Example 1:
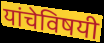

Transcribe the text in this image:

यांचेविषयी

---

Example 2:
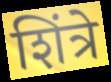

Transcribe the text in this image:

शिंत्रे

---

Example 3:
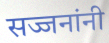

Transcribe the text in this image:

सज्जनांनी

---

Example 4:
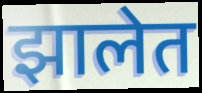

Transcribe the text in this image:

झालेत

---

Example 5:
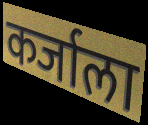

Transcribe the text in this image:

कर्जाला